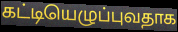
கட்டியெழுப்புவதாக